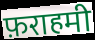
फ़राहमी